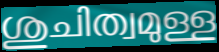
ശുചിത്വമുള്ള